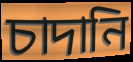
চাদানি